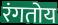
रंगतोय